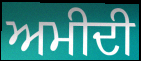
ਅਮੀਦੀ